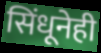
सिंधूनेही